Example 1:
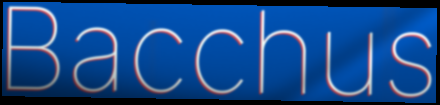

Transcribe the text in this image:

Bacchus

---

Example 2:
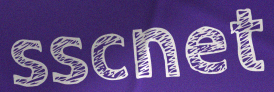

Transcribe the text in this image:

sscnet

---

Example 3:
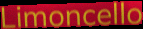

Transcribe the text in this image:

Limoncello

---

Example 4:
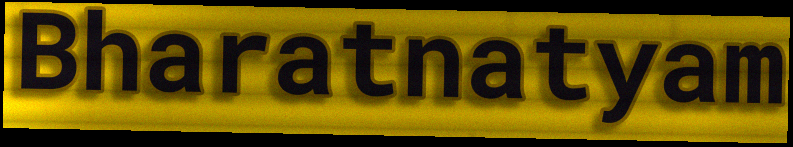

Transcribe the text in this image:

Bharatnatyam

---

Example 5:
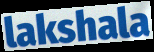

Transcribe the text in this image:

lakshala